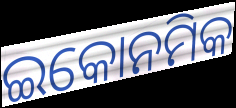
ଇକୋନମିକ